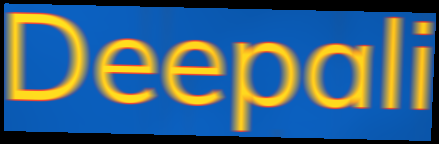
Deepali